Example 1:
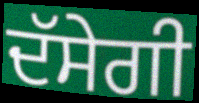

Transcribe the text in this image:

ਦੱਸੇਗੀ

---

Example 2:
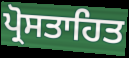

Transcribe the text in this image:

ਪ੍ਰੋਸਤਾਹਿਤ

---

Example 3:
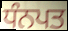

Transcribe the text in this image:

ਧੰਨਪਤ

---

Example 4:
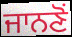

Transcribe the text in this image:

ਜਾਨਣੋਂ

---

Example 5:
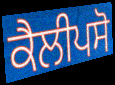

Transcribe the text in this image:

ਕੈਲੀਪਸੋ